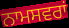
ਨਾਮਸਵਰਾਂ